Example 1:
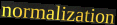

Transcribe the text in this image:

normalization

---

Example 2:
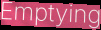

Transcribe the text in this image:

Emptying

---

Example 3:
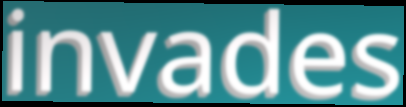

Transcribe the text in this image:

invades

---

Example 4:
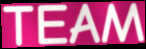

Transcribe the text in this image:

TEAM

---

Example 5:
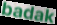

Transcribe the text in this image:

badak